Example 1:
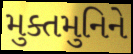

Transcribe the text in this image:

મુક્તમુનિને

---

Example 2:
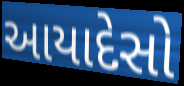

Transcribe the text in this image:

આયાદેસો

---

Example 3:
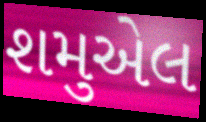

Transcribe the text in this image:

શમુએલ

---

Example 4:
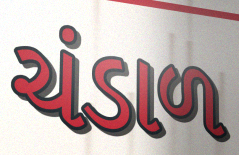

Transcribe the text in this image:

ચંડાળ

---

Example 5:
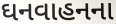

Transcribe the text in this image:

ઘનવાહનના